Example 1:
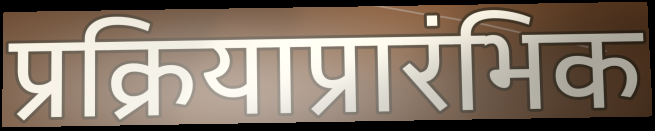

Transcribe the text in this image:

प्रक्रियाप्रारंभिक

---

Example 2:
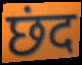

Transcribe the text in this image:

छंद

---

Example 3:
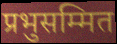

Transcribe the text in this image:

प्रभुसम्मित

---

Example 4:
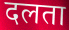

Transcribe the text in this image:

दलता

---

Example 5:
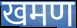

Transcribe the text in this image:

खमण